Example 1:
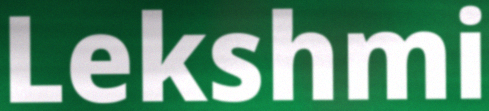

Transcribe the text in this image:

Lekshmi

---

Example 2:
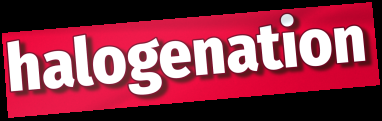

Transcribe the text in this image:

halogenation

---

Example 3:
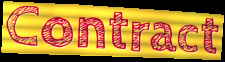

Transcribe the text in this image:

Contract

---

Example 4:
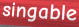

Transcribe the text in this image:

singable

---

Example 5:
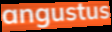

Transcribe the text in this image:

angustus